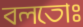
বলতোঃ